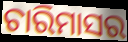
ଚାରିମାସର